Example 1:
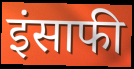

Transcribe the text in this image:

इंसाफी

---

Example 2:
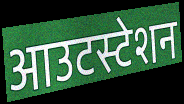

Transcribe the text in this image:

आउटस्टेशन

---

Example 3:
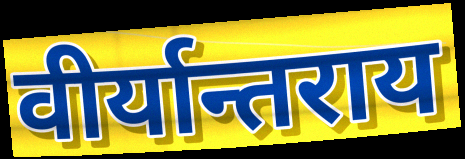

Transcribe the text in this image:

वीर्यान्तराय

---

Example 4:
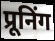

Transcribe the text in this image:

प्रूनिंग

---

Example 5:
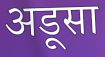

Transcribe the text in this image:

अडूसा